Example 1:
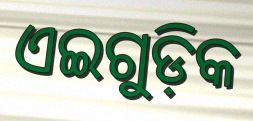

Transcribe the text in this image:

ଏଇଗୁଡ଼ିକ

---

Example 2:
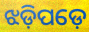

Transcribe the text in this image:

ଝଡ଼ିପଡ଼େ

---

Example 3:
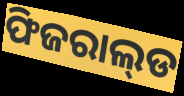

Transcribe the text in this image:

ଫିଜରାଲ୍‌ଡ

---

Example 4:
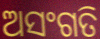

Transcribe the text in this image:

ଅସଂଗତି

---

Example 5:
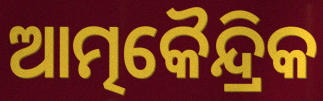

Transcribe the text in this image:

ଆତ୍ମକୈନ୍ଦ୍ରିକ